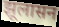
झूलासन